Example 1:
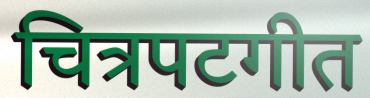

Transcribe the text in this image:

चित्रपटगीत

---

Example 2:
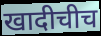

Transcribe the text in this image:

खादीचीच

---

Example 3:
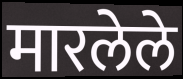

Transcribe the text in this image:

मारलेले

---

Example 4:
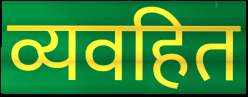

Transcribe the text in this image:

व्यवहित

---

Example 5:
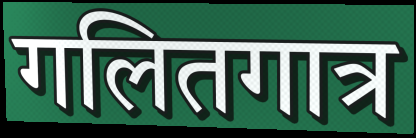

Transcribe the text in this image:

गलितगात्र